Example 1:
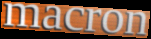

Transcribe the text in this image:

macron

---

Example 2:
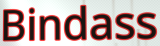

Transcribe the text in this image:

Bindass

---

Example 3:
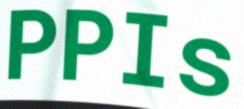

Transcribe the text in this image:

PPIs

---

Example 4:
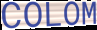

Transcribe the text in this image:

COLOM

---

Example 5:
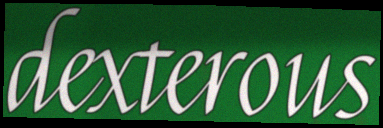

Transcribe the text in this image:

dexterous